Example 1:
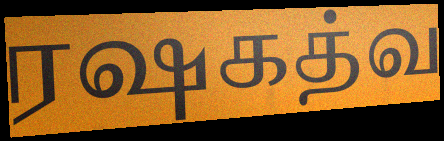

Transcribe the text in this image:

ரஷகத்வ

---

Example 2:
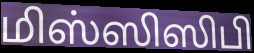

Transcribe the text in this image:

மிஸ்ஸிஸிபி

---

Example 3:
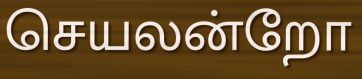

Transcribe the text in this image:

செயலன்றோ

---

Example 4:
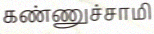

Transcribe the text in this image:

கண்ணுச்சாமி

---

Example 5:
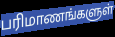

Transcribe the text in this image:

பரிமாணங்களுள்